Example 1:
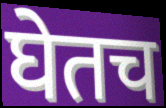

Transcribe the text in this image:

घेतच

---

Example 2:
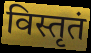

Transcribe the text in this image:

विस्तृतं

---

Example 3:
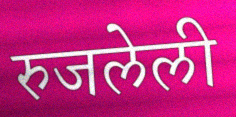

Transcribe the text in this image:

रुजलेली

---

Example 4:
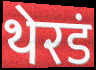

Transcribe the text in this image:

थेरडं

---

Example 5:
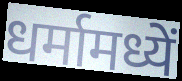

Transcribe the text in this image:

धर्मामध्यें